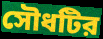
সৌধটির